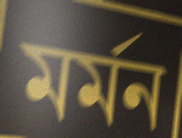
মর্মন